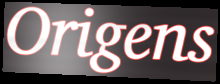
Origens